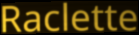
Raclette